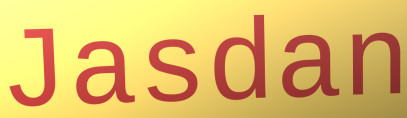
Jasdan